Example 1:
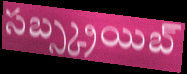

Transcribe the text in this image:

సబ్స్క్రయిబ్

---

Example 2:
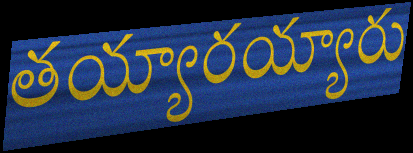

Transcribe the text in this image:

తయ్యారయ్యారు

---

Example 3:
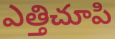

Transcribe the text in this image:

ఎత్తిచూపి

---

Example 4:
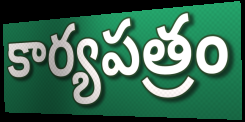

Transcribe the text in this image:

కార్యపత్రం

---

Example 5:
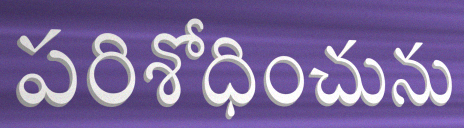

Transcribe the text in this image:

పరిశోధించును